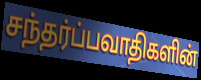
சந்தர்ப்பவாதிகளின்